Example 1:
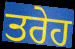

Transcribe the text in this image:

ਤਰੇਹ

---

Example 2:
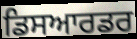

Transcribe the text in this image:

ਡਿਸਆਰਡਰ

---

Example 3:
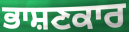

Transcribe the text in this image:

ਭਾਸ਼ਣਕਾਰ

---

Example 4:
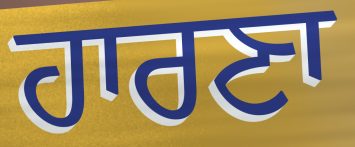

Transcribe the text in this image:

ਹਾਰਣਾ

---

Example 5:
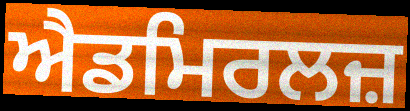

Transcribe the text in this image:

ਐਡਮਿਰਲਜ਼